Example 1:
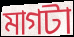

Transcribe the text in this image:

মাগটা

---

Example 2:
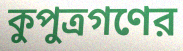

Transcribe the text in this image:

কুপুত্রগণের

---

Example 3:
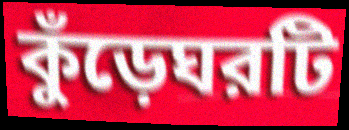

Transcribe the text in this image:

কুঁড়েঘরটি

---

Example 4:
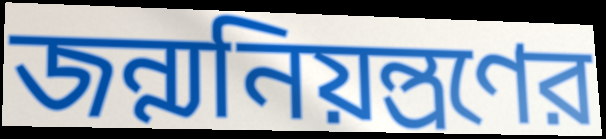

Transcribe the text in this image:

জন্মনিয়ন্ত্রণের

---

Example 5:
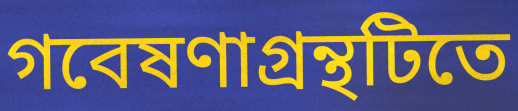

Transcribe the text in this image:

গবেষণাগ্রন্থটিতে